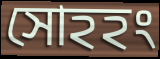
সোহহং